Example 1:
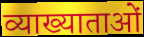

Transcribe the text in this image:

व्याख्याताओं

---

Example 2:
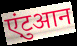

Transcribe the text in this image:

एंटुआन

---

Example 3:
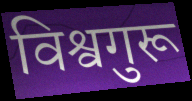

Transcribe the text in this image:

विश्वगुरू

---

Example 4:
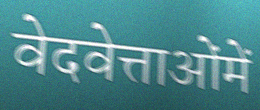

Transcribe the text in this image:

वेदवेत्ताओंमें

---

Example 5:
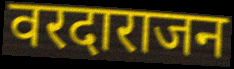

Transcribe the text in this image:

वरदाराजन